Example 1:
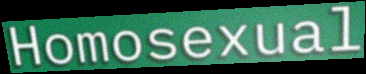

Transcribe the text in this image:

Homosexual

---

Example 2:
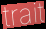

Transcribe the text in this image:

trait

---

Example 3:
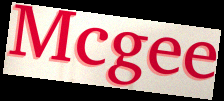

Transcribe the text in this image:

Mcgee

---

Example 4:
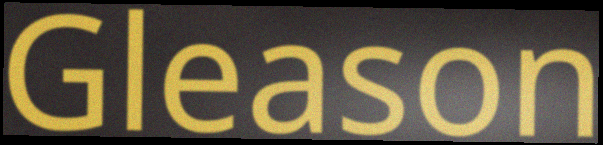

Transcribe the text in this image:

Gleason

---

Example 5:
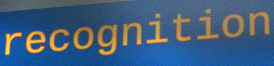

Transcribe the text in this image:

recognition